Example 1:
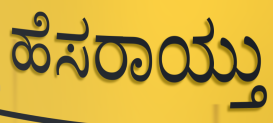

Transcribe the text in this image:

ಹೆಸರಾಯ್ತು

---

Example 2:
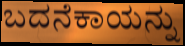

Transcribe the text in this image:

ಬದನೆಕಾಯನ್ನು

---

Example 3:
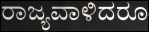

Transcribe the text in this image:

ರಾಜ್ಯವಾಳಿದರೂ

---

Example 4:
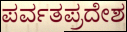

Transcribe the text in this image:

ಪರ್ವತಪ್ರದೇಶ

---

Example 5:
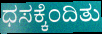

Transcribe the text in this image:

ಧಸಕ್ಕೆಂದಿತು